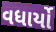
વધાર્યો